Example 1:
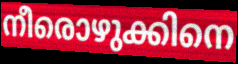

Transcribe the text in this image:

നീരൊഴുക്കിനെ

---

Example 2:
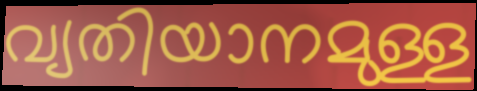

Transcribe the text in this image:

വ്യതിയാനമുള്ള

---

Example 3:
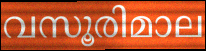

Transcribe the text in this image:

വസൂരിമാല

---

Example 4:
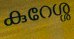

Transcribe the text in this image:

കുറേശ്ശ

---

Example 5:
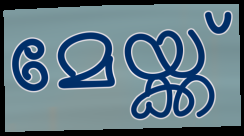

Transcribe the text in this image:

മേയ്ക്ക്